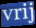
vrij